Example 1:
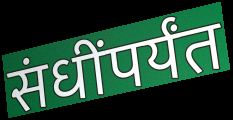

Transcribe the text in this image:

संधींपर्यंत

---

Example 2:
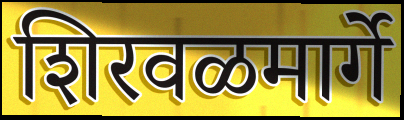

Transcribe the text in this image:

शिरवळमार्गे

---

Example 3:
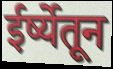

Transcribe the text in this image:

ईर्ष्येतून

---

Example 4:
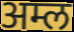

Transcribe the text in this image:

अम्ल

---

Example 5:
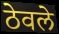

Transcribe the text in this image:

ठेवले